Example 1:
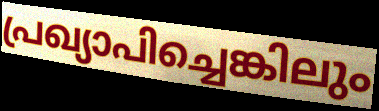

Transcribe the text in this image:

പ്രഖ്യാപിച്ചെങ്കിലും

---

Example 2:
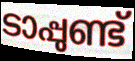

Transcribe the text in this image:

ടാപ്പുണ്ട്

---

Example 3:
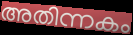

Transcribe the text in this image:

അതിന്നകം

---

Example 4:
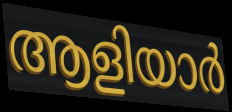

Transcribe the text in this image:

ആളിയാർ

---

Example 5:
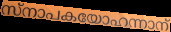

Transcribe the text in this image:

സ്നാപകയോഹന്നാന്